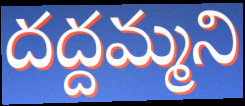
దద్దమ్మని